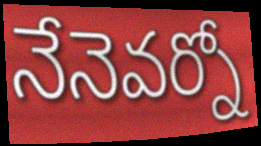
నేనెవర్నో